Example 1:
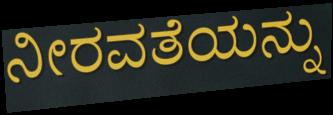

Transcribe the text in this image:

ನೀರವತೆಯನ್ನು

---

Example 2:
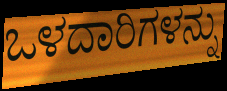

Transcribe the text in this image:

ಒಳದಾರಿಗಳನ್ನು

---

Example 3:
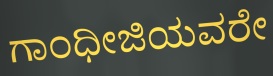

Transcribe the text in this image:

ಗಾಂಧೀಜಿಯವರೇ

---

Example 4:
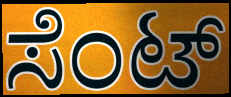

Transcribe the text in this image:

ಸೆಂಟ್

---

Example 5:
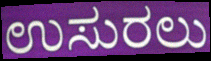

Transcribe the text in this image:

ಉಸುರಲು